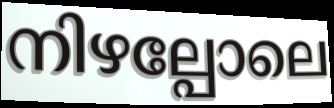
നിഴല്പോലെ